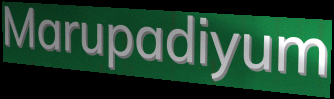
Marupadiyum